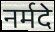
नर्मदे